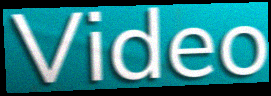
Video